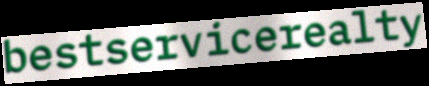
bestservicerealty